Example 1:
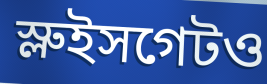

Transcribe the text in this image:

স্লুইসগেটও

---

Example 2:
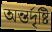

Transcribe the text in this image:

অন্তর্দৃষ্টি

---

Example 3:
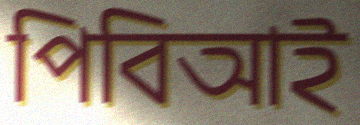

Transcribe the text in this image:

পিবিআই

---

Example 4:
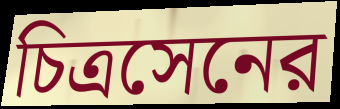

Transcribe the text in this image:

চিত্রসেনের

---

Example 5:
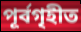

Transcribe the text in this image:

পূর্বগৃহীত